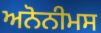
ਅਨੋਨੀਮਸ